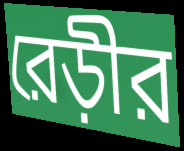
রেড়ীর